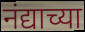
नंद्याच्या